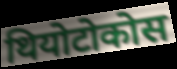
थियोटोकोस